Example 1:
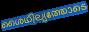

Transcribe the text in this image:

ശൈഥില്യത്തോടെ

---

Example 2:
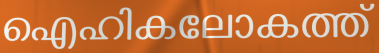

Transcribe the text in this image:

ഐഹികലോകത്ത്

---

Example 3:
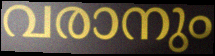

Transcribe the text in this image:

വരാനും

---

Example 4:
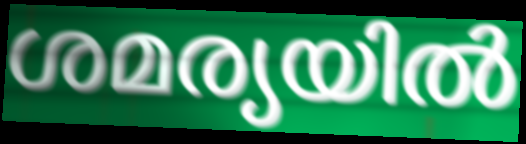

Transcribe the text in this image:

ശമര്യയിൽ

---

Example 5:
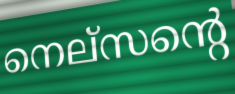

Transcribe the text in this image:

നെല്സന്റെ